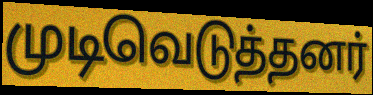
முடிவெடுத்தனர்